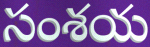
సంశయ